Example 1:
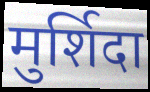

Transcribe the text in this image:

मुर्शिदा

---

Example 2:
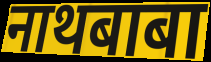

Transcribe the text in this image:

नाथबाबा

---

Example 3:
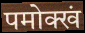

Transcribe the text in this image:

पमोक्खं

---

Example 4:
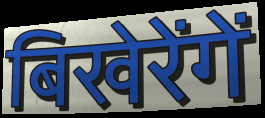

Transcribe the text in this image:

बिखेरेंगें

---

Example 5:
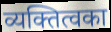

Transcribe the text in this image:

व्यक्तित्वका